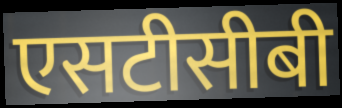
एसटीसीबी